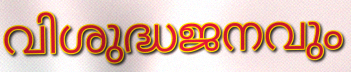
വിശുദ്ധജനവും